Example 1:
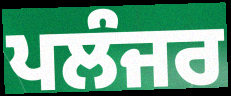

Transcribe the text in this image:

ਪਲੰਜਰ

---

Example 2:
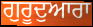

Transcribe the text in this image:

ਗੁਰੂਦੁਆਰਾ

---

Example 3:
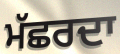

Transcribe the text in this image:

ਮੱਛਰਦਾ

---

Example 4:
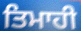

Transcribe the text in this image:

ਤਿਮਾਹੀ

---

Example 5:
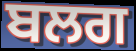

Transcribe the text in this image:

ਬਲਗ